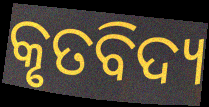
କୃତବିଦ୍ୟ